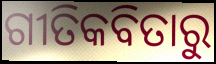
ଗୀତିକବିତାରୁ